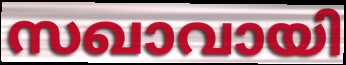
സഖാവായി